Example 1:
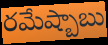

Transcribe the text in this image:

రమేష్బాబు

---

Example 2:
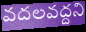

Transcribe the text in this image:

వదలవద్దని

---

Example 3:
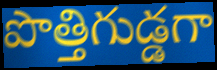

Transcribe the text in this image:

పొత్తిగుడ్డగా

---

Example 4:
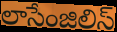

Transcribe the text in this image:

లాసేంజిలిస్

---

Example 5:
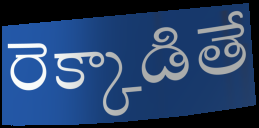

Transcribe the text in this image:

రెక్కాడితే